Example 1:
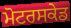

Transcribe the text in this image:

ਮੋਟਰਸਕੇਡ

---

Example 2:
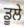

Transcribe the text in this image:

ਡੂਲੇ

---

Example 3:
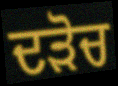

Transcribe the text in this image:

ਦੜੋਚ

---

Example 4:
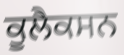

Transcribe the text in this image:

ਕੂਲੈਕਸਨ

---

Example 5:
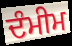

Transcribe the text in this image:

ਦੰਮੀਮ